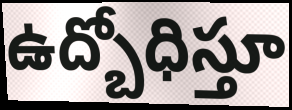
ఉద్బోధిస్తూ